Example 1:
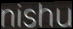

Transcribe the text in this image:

nishu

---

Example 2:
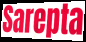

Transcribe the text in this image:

Sarepta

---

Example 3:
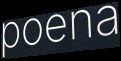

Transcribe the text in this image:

poena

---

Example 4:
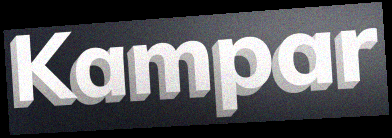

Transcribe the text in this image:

Kampar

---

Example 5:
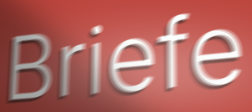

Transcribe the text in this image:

Briefe